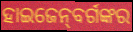
ହାଇଜେନ୍‌ବର୍ଗଙ୍କର